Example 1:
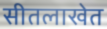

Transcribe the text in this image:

सीतलाखेत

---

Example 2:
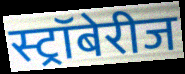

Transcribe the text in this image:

स्ट्रॉबेरीज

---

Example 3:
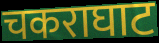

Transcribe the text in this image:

चकराघाट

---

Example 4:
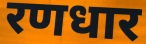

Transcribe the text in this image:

रणधार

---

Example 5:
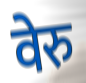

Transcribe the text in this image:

वेरु